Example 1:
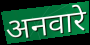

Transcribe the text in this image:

अनवारे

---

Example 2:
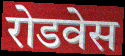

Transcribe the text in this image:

रोडवेस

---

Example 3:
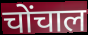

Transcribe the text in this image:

चोंचाल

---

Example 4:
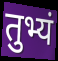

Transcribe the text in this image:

तुभ्यं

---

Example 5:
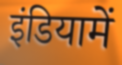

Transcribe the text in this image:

इंडियामें